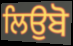
ਲਿਉਬੋ